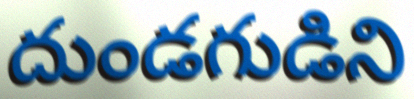
దుండగుడిని